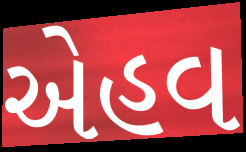
એહવ